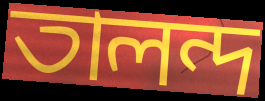
তালন্দ